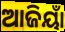
ଆଜିୟାଁ